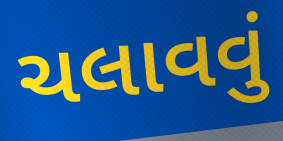
ચલાવવું